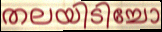
തലയിടിച്ചോ